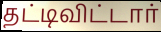
தட்டிவிட்டார்